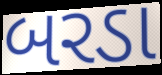
બરડા